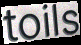
toils